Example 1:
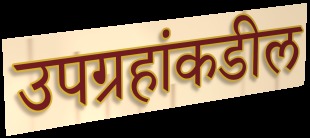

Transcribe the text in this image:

उपग्रहांकडील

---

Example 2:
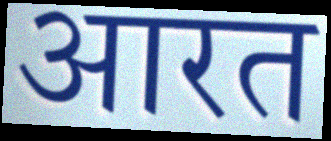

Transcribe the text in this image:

आरत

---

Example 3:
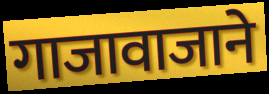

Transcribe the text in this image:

गाजावाजाने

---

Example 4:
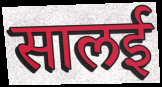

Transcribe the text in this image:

सालई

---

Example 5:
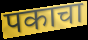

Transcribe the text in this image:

पकाचा